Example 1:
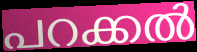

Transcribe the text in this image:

പറക്കൽ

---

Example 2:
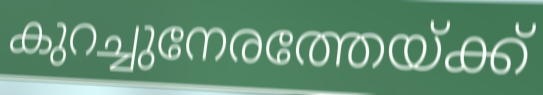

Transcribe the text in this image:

കുറച്ചുനേരത്തേയ്ക്ക്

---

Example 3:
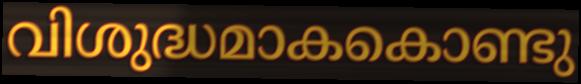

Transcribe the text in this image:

വിശുദ്ധമാകകൊണ്ടു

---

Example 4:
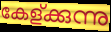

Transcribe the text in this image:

കേള്ക്കുന്നു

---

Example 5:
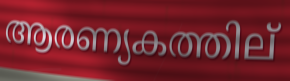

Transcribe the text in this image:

ആരണ്യകത്തില്